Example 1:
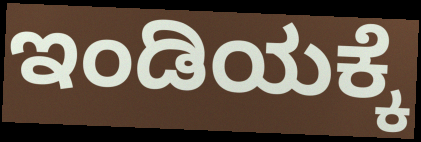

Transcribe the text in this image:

ಇಂಡಿಯಕ್ಕೆ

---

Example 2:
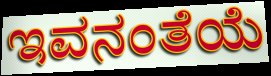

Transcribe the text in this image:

ಇವನಂತೆಯೆ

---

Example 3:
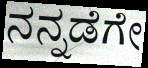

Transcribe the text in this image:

ನನ್ನಡೆಗೇ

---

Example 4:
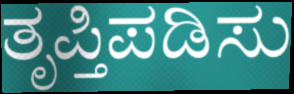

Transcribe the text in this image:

ತೃಪ್ತಿಪಡಿಸು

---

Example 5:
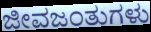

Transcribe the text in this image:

ಜೀವಜಂತುಗಳು